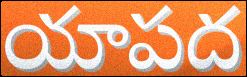
యాపద